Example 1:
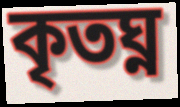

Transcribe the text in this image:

কৃতঘ্ন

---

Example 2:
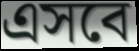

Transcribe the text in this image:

এসবে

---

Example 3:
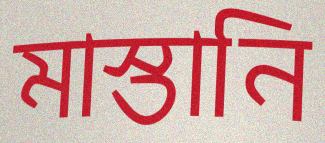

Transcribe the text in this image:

মাস্তানি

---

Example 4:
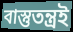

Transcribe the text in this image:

বাস্তুতন্ত্রই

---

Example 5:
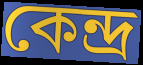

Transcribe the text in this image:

কেন্দ্র